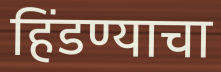
हिंडण्याचा